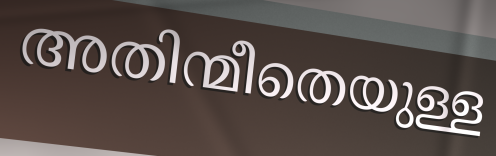
അതിന്മീതെയുള്ള